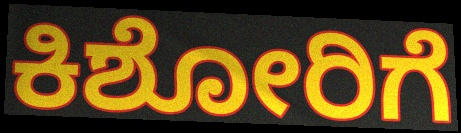
ಕಿಶೋರಿಗೆ